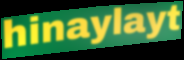
hinaylayt